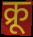
क्रू